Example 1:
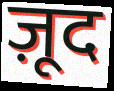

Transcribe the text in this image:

ज़ूद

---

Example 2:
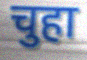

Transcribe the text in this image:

चुहा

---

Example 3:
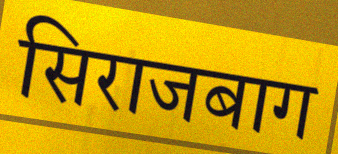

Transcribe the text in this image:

सिराजबाग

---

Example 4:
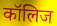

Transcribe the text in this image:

कॉलिज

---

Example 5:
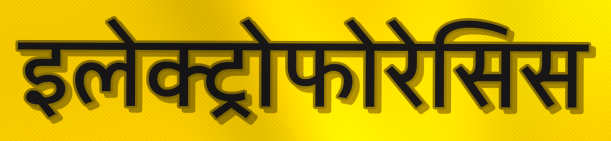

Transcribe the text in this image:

इलेक्ट्रोफोरेसिस